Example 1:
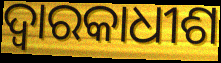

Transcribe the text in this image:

ଦ୍ୱାରକାଧୀଶ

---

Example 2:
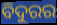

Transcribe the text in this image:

ବିଦୁରର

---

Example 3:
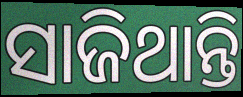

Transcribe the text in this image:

ସାଜିଥାନ୍ତି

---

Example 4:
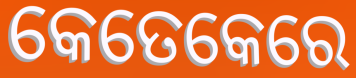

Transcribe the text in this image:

କେତେକେରେ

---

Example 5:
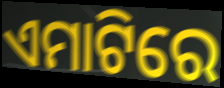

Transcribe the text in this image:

ଏମାଟିରେ